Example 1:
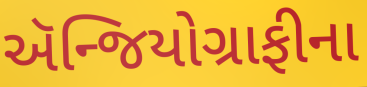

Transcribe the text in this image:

ઍન્જિયોગ્રાફીના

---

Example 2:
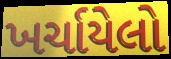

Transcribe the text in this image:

ખર્ચાયેલો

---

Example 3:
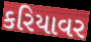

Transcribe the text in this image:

કરિયાવર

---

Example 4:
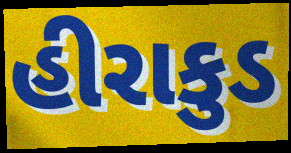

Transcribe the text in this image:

હીરાકુડ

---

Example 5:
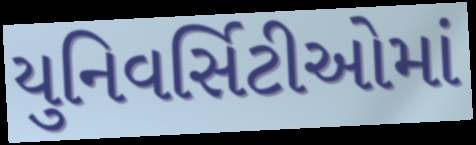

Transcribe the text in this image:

યુનિવર્સિટીઓમાં